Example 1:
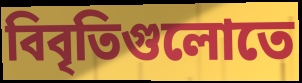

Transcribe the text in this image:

বিবৃতিগুলোতে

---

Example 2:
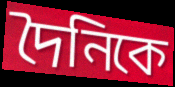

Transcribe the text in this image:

দৈনিকে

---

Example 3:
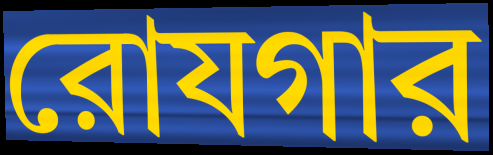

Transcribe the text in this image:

রোযগার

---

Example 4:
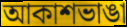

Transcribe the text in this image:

আকাশভাঙা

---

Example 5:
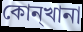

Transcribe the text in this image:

কোন্খানা